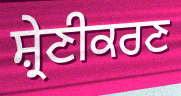
ਸ਼੍ਰੇਣੀਕਰਣ